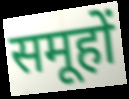
समूहों